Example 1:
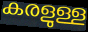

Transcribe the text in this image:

കരളുള്ള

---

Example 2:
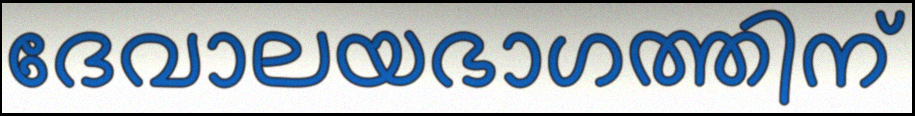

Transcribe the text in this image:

ദേവാലയഭാഗത്തിന്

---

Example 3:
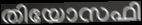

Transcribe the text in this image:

തിയോസഫി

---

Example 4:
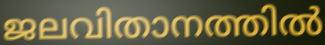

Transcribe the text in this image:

ജലവിതാനത്തിൽ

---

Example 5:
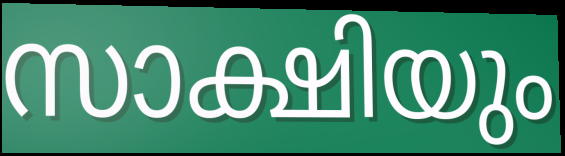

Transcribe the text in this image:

സാക്ഷിയും